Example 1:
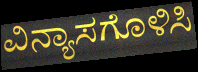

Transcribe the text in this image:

ವಿನ್ಯಾಸಗೊಳಿಸಿ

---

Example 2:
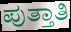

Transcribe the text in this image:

ಪುತ್ತಾತಿ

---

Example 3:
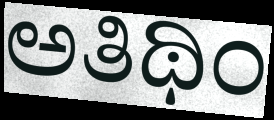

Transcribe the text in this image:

ಅತಿಥಿಂ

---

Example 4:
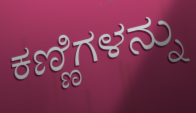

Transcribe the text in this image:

ಕಣ್ಣಿಗಳನ್ನು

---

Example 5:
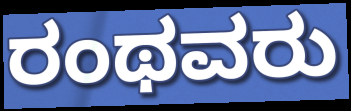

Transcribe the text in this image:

ರಂಥವರು